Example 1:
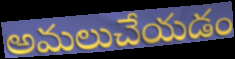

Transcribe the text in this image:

అమలుచేయడం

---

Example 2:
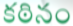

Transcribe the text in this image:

కఠినం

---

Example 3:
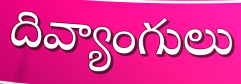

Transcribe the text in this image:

దివ్యాంగులు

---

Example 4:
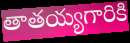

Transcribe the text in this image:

తాతయ్యగారికి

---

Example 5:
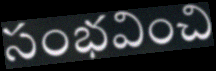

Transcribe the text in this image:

సంభవించి